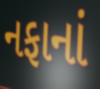
નફાનાં